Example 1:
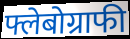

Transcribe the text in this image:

फ्लेबोग्राफी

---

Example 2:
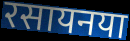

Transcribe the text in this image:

रसायनया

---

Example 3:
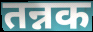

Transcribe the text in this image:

तन्नक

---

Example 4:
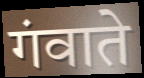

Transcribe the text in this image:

गंवाते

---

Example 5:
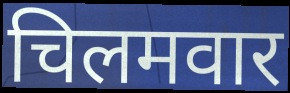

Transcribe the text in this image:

चिलमवार